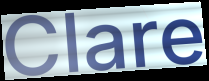
Clare